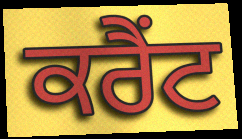
ਕਰੈਂਟ